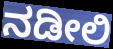
ನಡೀಲಿ